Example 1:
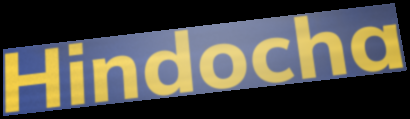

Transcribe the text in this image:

Hindocha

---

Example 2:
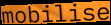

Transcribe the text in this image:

mobilise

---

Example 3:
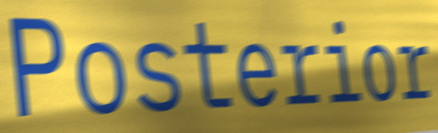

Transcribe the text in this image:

Posterior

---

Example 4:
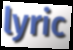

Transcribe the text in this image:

lyric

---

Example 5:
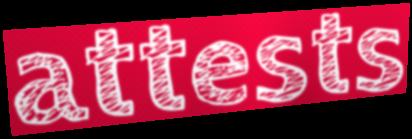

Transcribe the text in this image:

attests